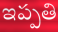
ఇప్పతి